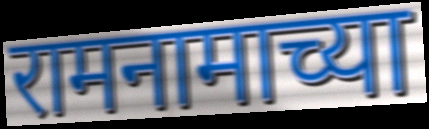
रामनामाच्या